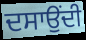
ਦਸਾਉਂਦੀ